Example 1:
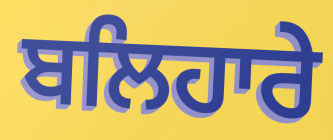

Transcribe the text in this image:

ਬਲਿਹਾਰੇ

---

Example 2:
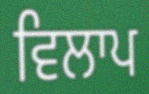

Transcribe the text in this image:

ਵਿਲਾਪ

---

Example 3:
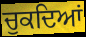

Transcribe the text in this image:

ਚੁਕਦਿਆਂ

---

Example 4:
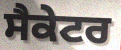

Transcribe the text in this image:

ਸੈਕੇਟਰ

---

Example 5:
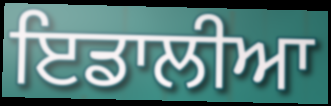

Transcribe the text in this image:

ਇਡਾਲੀਆ